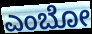
ಎಂಬೋ